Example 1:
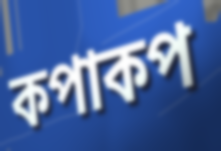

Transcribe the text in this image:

কপাকপ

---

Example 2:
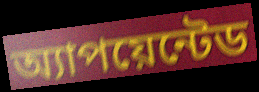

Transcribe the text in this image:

অ্যাপয়েন্টেড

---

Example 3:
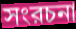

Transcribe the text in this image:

সংরচনা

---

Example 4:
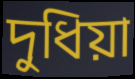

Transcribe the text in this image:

দুধিয়া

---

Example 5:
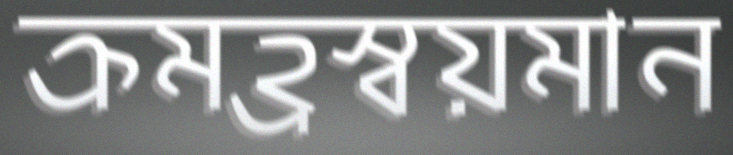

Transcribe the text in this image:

ক্রমহ্রস্বয়মান